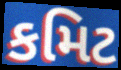
કમિટ